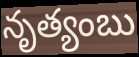
నృత్యంబు